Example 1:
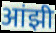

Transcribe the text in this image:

आंझी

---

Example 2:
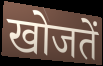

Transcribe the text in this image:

खोजतें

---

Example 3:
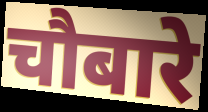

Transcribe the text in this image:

चौबारे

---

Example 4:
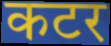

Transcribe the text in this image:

कटर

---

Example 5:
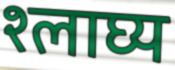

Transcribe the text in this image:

श्लाघ्य